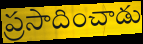
ప్రసాదించాడు